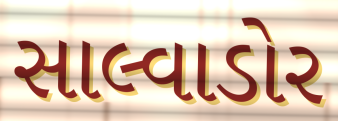
સાલ્વાડોર